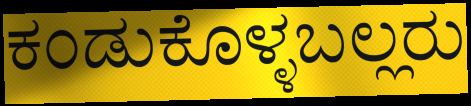
ಕಂಡುಕೊಳ್ಳಬಲ್ಲರು